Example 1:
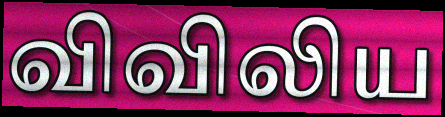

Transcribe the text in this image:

விவிலிய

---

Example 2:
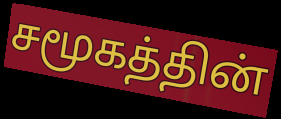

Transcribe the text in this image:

சமூகத்தின்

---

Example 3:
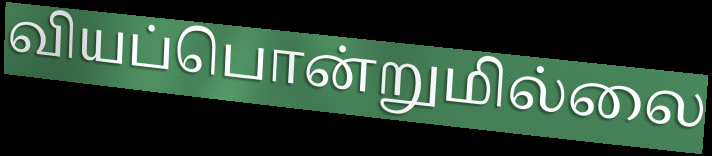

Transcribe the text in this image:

வியப்பொன்றுமில்லை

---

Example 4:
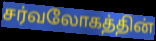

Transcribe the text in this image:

சர்வலோகத்தின்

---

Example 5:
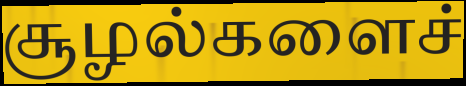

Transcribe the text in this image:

சூழல்களைச்